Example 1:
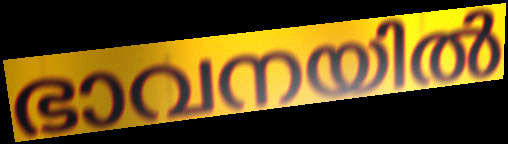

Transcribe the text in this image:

ഭാവനയിൽ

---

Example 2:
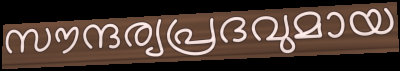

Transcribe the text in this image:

സൗന്ദര്യപ്രദവുമായ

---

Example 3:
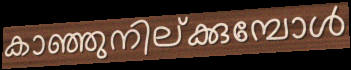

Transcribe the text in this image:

കാഞ്ഞുനില്ക്കുമ്പോൾ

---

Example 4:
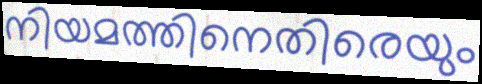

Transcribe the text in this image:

നിയമത്തിനെതിരെയും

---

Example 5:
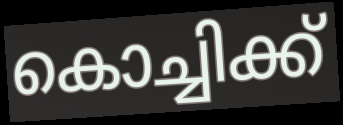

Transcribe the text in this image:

കൊച്ചിക്ക്